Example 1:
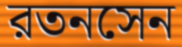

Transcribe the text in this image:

রতনসেন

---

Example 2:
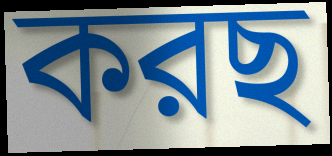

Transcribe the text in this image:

করছ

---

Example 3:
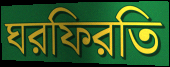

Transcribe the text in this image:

ঘরফিরতি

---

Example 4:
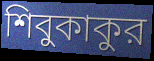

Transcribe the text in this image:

শিবুকাকুর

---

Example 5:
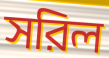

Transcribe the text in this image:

সরিল